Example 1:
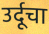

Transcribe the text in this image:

उर्दूचा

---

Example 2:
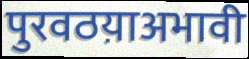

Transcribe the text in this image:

पुरवठय़ाअभावी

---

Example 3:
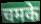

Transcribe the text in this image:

चमके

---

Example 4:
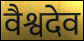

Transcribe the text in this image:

वैश्वदेव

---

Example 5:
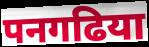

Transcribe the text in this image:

पनगढिया